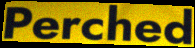
Perched